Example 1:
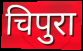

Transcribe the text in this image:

चिपुरा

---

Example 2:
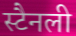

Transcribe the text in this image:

स्टैनली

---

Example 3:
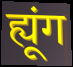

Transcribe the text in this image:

ह्यूंग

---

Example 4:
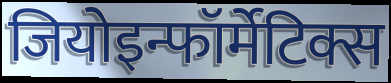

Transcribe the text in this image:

जियोइन्फॉर्मेटिक्स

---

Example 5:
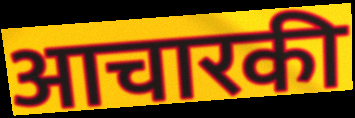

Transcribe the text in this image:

आचारकी